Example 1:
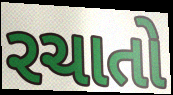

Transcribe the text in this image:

રચાતો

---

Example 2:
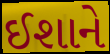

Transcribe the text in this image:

ઈશાને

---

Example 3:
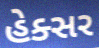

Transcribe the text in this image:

હેક્સર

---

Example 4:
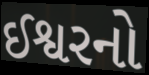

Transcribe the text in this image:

ઈશ્વરનો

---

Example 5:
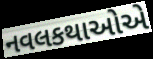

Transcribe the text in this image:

નવલકથાઓએ